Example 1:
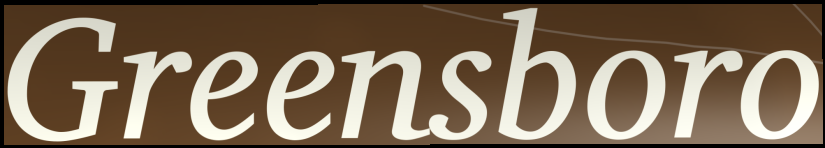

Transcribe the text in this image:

Greensboro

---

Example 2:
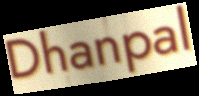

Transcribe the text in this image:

Dhanpal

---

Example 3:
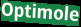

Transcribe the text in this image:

Optimole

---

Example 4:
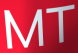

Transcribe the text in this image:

MT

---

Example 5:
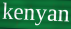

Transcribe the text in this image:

kenyan